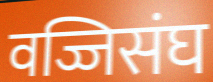
वज्जिसंघ